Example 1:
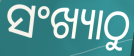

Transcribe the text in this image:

ସଂଖ୍ୟାଠୁ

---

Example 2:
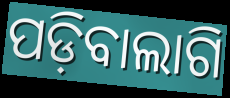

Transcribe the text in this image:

ପଡ଼ିବାଲାଗି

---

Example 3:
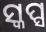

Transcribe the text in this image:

ସ୍କପ୍ସ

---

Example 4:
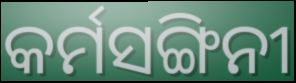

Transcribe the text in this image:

କର୍ମସଙ୍ଗିନୀ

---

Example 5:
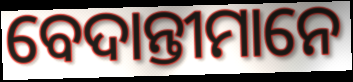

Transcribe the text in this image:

ବେଦାନ୍ତୀମାନେ